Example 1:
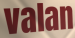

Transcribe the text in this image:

valan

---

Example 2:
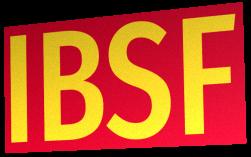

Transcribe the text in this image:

IBSF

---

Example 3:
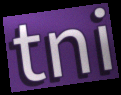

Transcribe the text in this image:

tni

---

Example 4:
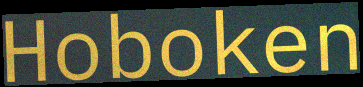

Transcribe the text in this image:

Hoboken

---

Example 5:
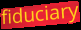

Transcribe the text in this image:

fiduciary